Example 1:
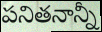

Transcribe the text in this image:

పనితనాన్నీ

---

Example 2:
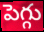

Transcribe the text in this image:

పెగ్గు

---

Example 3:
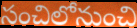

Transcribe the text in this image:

సంచిలోనుంచి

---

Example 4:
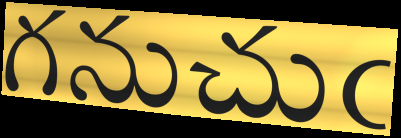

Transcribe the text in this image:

గనుచుఁ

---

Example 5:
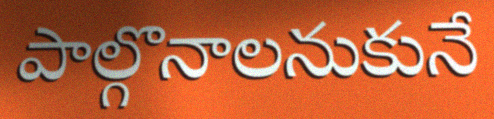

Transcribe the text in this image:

పాల్గొనాలనుకునే